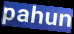
pahun